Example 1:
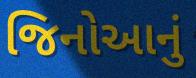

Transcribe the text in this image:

જિનોઆનું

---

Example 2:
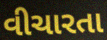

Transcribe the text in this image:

વીચારતા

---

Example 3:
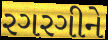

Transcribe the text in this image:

રગરગીને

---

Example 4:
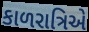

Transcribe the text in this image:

કાળરાત્રિએ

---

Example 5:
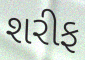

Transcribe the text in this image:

શરીફ